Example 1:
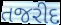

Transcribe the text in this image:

તજરીદ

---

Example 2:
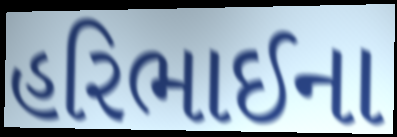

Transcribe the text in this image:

હરિભાઈના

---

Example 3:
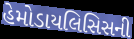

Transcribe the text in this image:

હેમોડાયલિસિસની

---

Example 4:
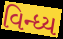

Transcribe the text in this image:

વિન્ધ્ય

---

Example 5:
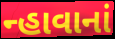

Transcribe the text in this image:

ન્હાવાનાં